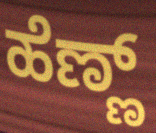
ಹೆಣ್ಣ್